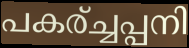
പകര്ച്ചപ്പനി